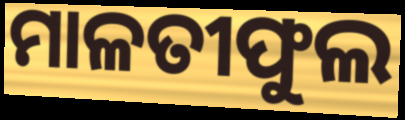
ମାଳତୀଫୁଲ